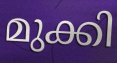
മുക്കി